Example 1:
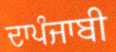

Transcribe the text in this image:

ਦਾਪੰਜਾਬੀ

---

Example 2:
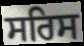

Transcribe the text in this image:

ਸਰਿਸ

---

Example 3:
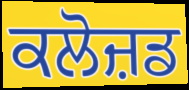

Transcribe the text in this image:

ਕਲੋਜ਼ਡ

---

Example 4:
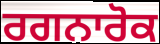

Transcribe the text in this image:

ਰਗਨਾਰੋਕ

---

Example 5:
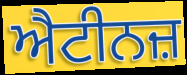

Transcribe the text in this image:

ਐਟੀਨਜ਼